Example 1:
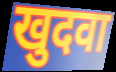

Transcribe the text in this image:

खुदवा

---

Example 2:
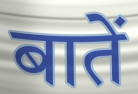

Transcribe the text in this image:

बातें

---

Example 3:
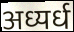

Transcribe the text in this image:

अध्यर्ध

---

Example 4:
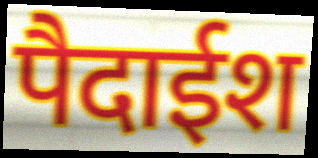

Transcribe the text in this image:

पैदाईश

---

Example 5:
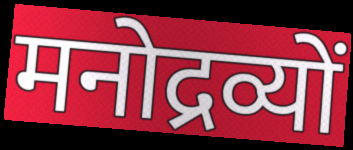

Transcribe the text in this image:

मनोद्रव्यों